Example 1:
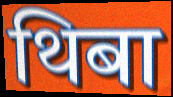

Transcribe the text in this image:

थिबा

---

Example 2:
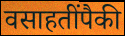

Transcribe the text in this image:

वसाहतींपैकी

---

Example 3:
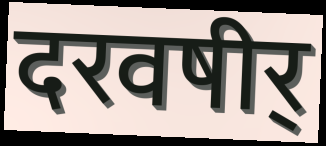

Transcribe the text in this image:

दरवषीर्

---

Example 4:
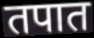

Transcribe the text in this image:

तपात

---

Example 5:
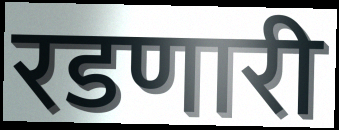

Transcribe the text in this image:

रडणारी